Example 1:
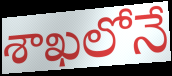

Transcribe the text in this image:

శాఖలోనే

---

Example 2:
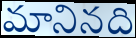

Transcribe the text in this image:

మానినది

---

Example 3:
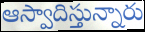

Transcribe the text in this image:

ఆస్వాదిస్తున్నారు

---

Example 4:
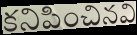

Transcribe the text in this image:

కనిపించినవి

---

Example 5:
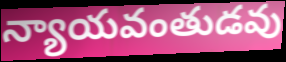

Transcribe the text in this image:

న్యాయవంతుడవు